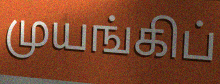
முயங்கிப்